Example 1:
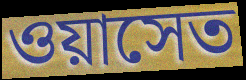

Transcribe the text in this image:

ওয়াসেত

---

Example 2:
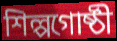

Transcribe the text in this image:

শিল্পগোষ্ঠী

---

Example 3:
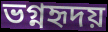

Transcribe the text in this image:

ভগ্নহৃদয়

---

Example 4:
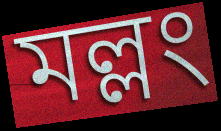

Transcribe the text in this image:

মল্লং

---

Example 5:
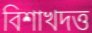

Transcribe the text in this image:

বিশাখদত্ত